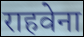
राहवेना